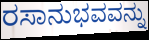
ರಸಾನುಭವವನ್ನು